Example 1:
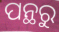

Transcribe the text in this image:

ପନ୍ଥରୁ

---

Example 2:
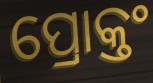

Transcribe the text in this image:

ପ୍ରୋକ୍ତଂ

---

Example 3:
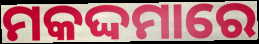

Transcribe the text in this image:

ମକଦ୍ଦମାରେ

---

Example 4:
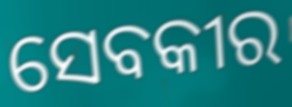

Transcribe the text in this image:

ସେବକୀର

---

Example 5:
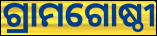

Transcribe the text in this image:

ଗ୍ରାମଗୋଷ୍ଠୀ